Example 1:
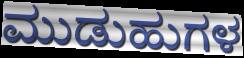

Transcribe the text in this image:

ಮುಡುಹುಗಳ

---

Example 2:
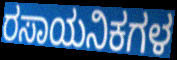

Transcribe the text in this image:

ರಸಾಯನಿಕಗಳ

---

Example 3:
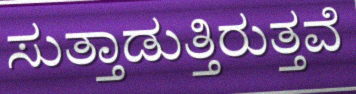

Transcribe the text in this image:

ಸುತ್ತಾಡುತ್ತಿರುತ್ತವೆ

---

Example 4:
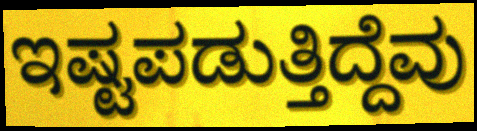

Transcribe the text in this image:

ಇಷ್ಟಪಡುತ್ತಿದ್ದೆವು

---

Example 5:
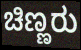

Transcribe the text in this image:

ಚಿಣ್ಣರು